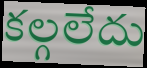
కల్గలేదు